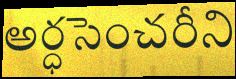
అర్ధసెంచరీని